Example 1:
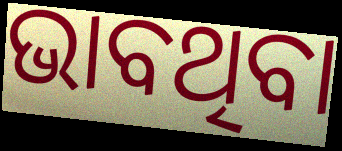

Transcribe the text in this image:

ଭାବଥିବା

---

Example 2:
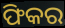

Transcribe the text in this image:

ଫିକର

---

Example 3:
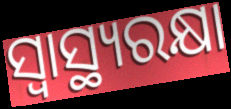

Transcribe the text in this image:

ସ୍ବାସ୍ଥ୍ୟରକ୍ଷା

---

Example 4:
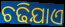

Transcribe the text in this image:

ଚଢିଯାଏ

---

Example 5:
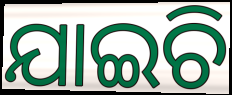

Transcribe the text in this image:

ଯାଇଚି